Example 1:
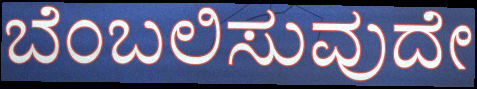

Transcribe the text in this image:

ಬೆಂಬಲಿಸುವುದೇ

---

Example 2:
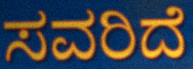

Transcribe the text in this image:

ಸವರಿದೆ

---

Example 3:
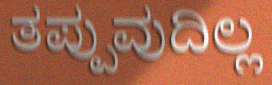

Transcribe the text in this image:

ತಪ್ಪುವುದಿಲ್ಲ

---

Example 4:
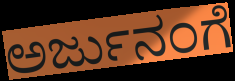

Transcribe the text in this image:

ಅರ್ಜುನಂಗೆ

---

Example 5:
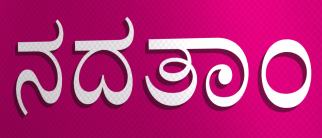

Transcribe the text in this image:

ನದತಾಂ